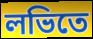
লভিতে